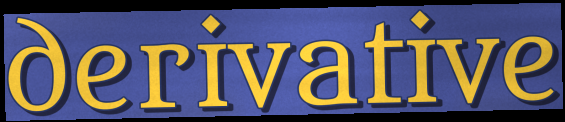
derivative